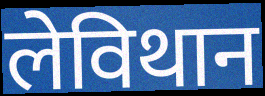
लेविथान